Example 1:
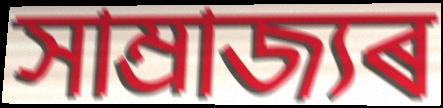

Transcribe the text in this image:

সাম্ৰাজ্যৰ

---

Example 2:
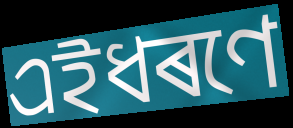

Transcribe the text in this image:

এইধৰণে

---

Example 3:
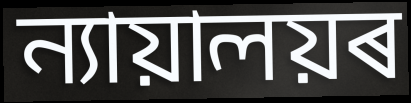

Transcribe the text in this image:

ন্যায়ালয়ৰ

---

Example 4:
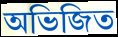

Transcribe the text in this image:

অভিজিত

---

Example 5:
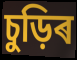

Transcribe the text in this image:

চুড়িৰ